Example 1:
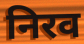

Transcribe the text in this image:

निरव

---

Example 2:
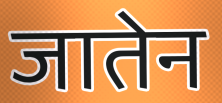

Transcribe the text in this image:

जातेन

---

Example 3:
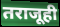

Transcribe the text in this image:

तराजूही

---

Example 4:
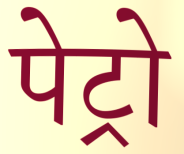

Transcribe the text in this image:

पेट्रो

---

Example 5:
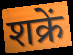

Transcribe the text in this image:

शक्रें